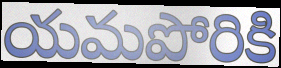
యమపోరికి